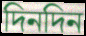
দিনদিন